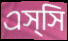
এস্‌সি